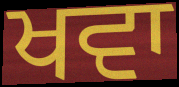
ਖਵਾ